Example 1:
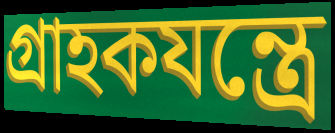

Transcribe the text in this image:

গ্রাহকযন্ত্রে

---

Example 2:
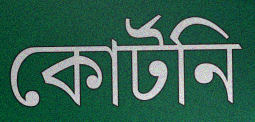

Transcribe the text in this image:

কোর্টনি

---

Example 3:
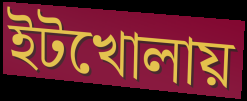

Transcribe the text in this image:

ইটখোলায়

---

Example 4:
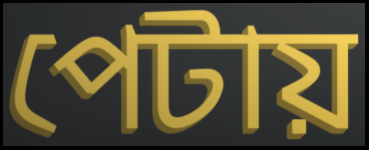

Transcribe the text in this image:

পেটায়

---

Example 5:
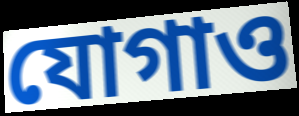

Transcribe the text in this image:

যোগাও